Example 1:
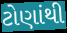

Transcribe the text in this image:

ટોણાંથી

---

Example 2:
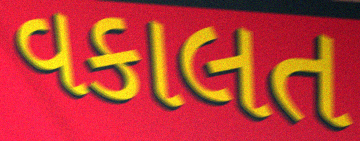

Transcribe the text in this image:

વકાલત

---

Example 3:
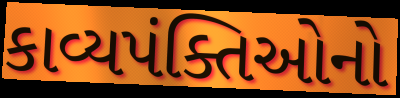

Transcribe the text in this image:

કાવ્યપંક્તિઓનો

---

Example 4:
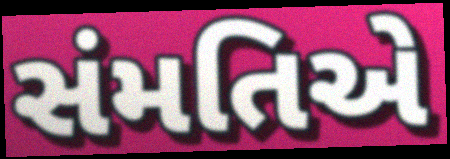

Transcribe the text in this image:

સંમતિએ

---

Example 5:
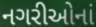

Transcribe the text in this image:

નગરીઓનાં